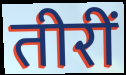
तीरीं